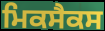
ਮਿਕਸੈਕਸ